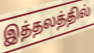
இத்தலத்தில்